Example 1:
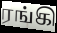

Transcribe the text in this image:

ரங்கி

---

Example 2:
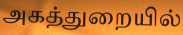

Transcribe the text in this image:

அகத்துறையில்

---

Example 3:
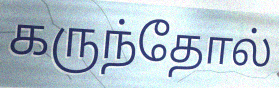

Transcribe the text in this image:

கருந்தோல்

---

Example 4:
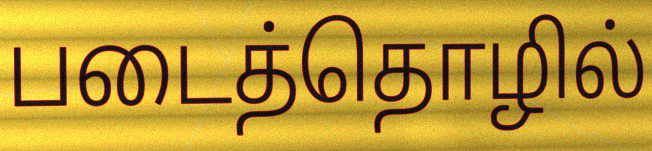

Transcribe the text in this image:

படைத்தொழில்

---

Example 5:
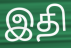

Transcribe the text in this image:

இதி